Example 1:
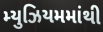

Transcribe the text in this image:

મ્યુઝિયમમાંથી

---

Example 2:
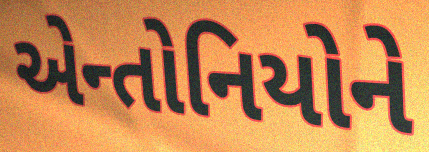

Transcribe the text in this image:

એન્તોનિયોને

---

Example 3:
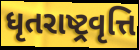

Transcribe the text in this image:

ધૃતરાષ્ટ્રવૃત્તિ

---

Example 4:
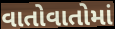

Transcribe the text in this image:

વાતોવાતોમાં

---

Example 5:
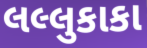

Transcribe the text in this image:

લલ્લુકાકા